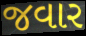
જવાર